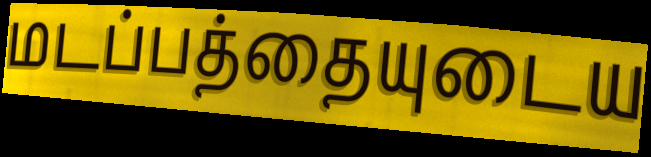
மடப்பத்தையுடைய